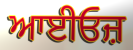
ਆਈਓਜ਼